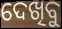
ଦେଖିବୁ